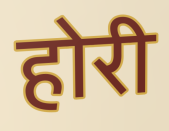
होरी